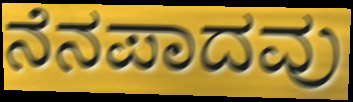
ನೆನಪಾದವು